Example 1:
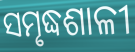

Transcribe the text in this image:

ସମୃଦ୍ଧଶାଳୀ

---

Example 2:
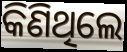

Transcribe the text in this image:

କିଣିଥିଲେ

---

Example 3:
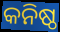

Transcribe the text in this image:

କନିଷ୍ଠ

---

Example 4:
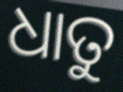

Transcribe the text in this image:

ଧାତୁ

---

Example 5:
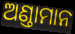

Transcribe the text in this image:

ଅଣ୍ଡାମାନ